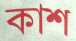
কাশ